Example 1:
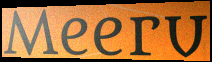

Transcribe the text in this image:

Meeru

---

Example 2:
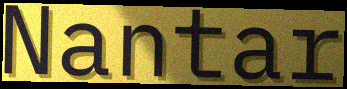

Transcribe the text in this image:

Nantar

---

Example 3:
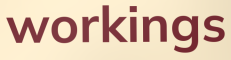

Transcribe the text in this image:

workings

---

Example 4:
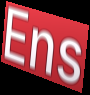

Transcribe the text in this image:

Ens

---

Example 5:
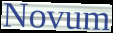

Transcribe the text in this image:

Novum